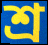
শ্র